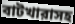
বাটখারাসহ